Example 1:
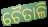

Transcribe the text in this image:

ଚୈତାଳି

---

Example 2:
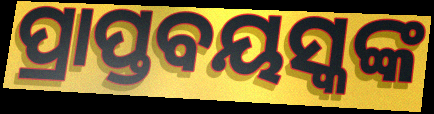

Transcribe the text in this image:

ପ୍ରାପ୍ତବୟସ୍କଙ୍କ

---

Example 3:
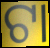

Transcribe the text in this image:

ଟା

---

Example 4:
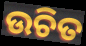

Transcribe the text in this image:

ଉଚିତ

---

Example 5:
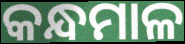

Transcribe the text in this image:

କନ୍ଧମାଳ